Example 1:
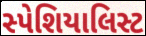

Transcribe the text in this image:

સ્પેશિયાલિસ્ટ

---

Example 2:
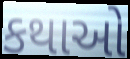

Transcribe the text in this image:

કથાઓ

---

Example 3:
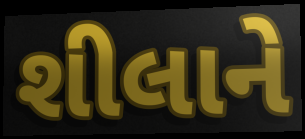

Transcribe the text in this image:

શીલાને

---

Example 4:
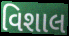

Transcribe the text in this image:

વિશાલ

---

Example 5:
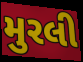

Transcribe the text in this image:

મુરલી